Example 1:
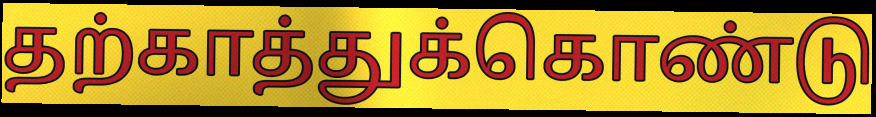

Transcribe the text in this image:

தற்காத்துக்கொண்டு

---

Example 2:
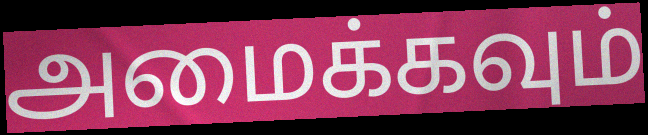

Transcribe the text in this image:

அமைக்கவும்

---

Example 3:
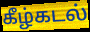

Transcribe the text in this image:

கீழ்கடல்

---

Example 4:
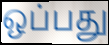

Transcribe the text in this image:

ஒப்பது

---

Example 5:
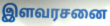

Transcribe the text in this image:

இளவரசனை